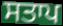
ਸਤਾਪ